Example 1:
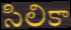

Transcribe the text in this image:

సిలికా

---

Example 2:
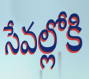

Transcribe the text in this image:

సేవల్లోకి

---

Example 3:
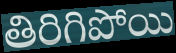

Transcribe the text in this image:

తిరిగిపోయి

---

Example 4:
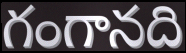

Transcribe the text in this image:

గంగానది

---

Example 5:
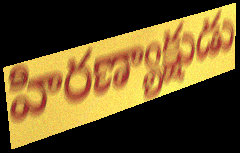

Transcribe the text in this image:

హిరణ్యాక్షుడు